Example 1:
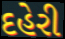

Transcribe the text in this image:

દહેરી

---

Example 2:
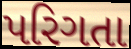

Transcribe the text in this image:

પરિગતા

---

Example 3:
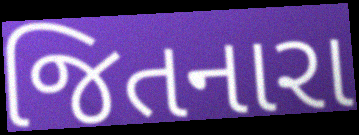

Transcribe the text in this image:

જિતનારા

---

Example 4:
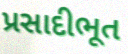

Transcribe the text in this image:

પ્રસાદીભૂત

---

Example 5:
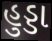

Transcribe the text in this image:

હુડ્ડા